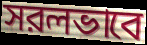
সরলভাবে